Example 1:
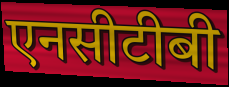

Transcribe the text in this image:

एनसीटीबी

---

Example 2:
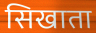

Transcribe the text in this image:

सिखाता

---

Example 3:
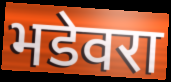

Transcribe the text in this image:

भडेवरा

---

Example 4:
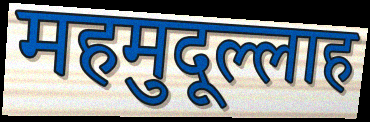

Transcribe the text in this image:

महमुदूल्लाह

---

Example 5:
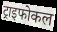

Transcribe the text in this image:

ट्राइफोकल